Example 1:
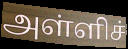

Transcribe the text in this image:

அள்ளிச்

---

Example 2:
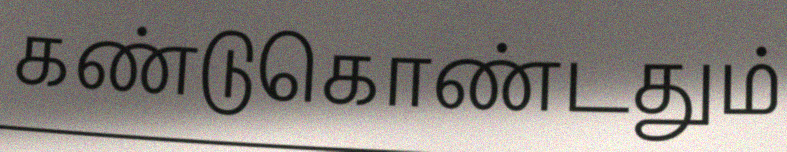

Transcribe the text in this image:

கண்டுகொண்டதும்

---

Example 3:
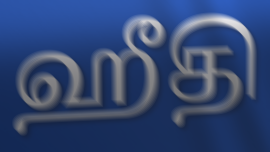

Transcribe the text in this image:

ஹீதி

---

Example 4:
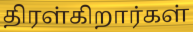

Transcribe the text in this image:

திரள்கிறார்கள்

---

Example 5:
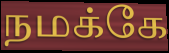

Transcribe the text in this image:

நமக்கே